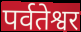
पर्वतेश्वर